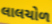
લાલચોળ